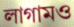
লাগামও